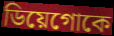
ডিয়েগোকে